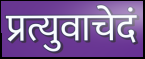
प्रत्युवाचेदं